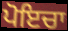
ਪੋਇਚਾ